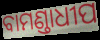
ବାମଣ୍ଡାଧୀପ